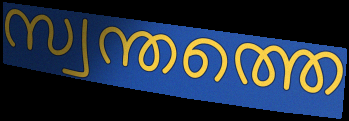
സ്വന്തത്തെ